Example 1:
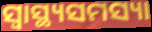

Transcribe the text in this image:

ସ୍ୱାସ୍ଥ୍ୟସମସ୍ୟା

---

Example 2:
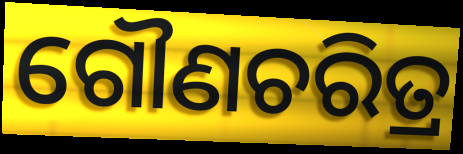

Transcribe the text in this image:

ଗୌଣଚରିତ୍ର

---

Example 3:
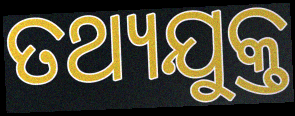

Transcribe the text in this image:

ତଥ୍ୟଯୁକ୍ତ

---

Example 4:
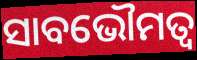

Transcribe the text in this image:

ସାବଭୌମତ୍ୱ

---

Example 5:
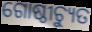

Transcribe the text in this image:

ଗୋଷ୍ଠୀଚ୍ୟୁତ